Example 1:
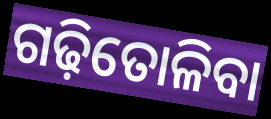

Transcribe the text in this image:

ଗଢ଼ିତୋଳିବା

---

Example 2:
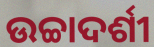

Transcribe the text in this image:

ଉଚ୍ଚାଦର୍ଶୀ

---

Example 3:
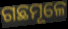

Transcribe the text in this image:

ଗଛମୂଳେ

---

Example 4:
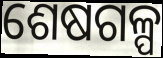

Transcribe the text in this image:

ଶେଷଗଳ୍ପ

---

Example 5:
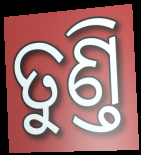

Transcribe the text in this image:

ତୁଣ୍ତି